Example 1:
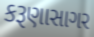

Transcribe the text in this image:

કરૂણાસાગર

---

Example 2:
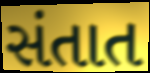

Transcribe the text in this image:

સંતાત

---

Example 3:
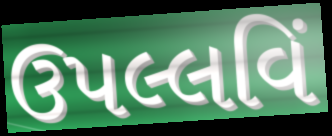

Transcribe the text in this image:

ઉપલ્લવિં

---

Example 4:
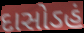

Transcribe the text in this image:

દાસોઽહં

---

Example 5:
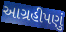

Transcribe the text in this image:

આગ્રહીપણું